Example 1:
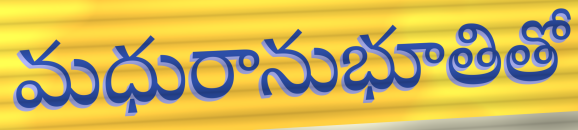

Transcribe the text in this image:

మధురానుభూతితో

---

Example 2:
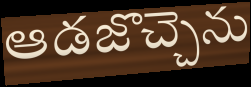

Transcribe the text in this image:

ఆడజొచ్చెను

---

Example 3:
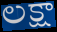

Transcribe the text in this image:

లక్షా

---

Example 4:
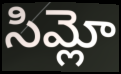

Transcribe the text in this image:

సిమ్లో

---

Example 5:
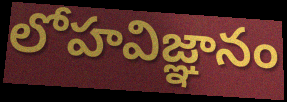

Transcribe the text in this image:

లోహవిజ్ఞానం